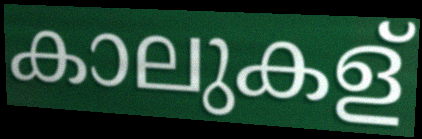
കാലുകള്